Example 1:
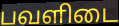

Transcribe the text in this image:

பவளிடை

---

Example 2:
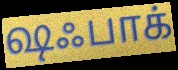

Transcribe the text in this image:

ஷஃபாக்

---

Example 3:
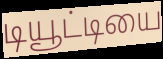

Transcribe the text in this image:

டியூட்டியை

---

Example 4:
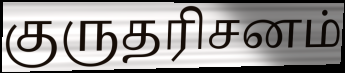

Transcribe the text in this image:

குருதரிசனம்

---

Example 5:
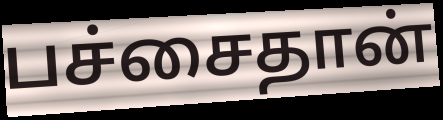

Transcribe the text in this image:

பச்சைதான்